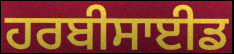
ਹਰਬੀਸਾਈਡ